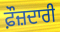
ਫ਼ੌਜ਼ਦਾਰੀ